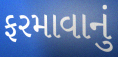
ફરમાવાનું